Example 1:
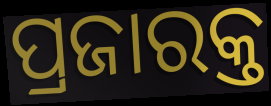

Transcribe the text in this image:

ପ୍ରଜାରକ୍ତ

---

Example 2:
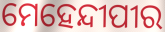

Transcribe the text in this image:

ମେହେନ୍ଦୀପୀର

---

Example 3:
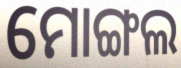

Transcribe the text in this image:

ମୋଙ୍ଗଲ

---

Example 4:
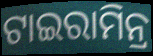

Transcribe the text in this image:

ଟାଇରାମିନ୍ର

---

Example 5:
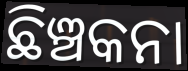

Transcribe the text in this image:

ଛିଞ୍ଚକନା